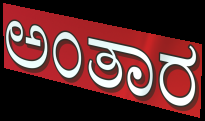
ಅಂತಾರ